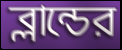
ব্লান্ডের